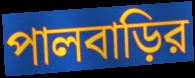
পালবাড়ির